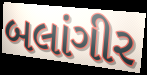
બલાંગીર